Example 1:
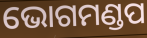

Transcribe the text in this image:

ଭୋଗମଣ୍ଡପ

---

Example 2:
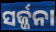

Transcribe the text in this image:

ସର୍ଜ୍ଜନା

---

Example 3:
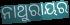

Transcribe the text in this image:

ନାଥୁରାୟର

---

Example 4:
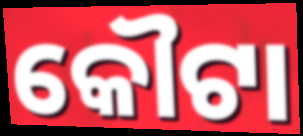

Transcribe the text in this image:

କୌଟା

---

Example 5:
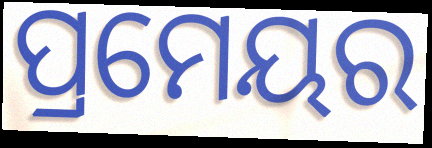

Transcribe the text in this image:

ପ୍ରମେୟର